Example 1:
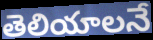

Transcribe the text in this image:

తెలియాలనే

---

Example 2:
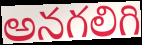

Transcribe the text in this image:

అనగలిగి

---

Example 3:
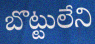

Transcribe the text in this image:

బొట్టులేని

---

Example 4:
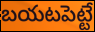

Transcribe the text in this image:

బయటపెట్టే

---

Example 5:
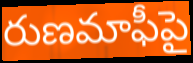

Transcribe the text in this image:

రుణమాఫీపై